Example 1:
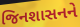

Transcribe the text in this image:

જિનશાસનને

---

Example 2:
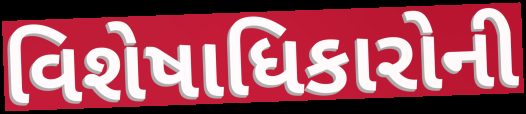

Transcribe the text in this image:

વિશેષાધિકારોની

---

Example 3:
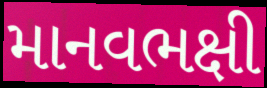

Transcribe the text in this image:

માનવભક્ષી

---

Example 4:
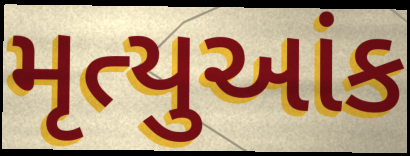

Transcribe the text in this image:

મૃત્યુઆંક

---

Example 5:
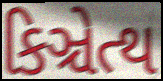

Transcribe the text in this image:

કિઞ્ચેત્થ